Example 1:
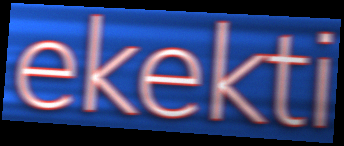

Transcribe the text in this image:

ekekti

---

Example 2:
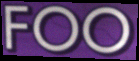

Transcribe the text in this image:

FOO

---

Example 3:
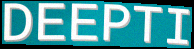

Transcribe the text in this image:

DEEPTI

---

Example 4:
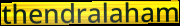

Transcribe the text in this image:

thendralaham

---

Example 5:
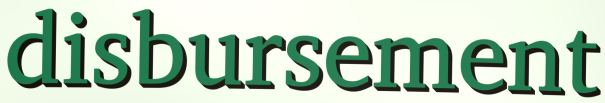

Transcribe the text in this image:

disbursement